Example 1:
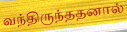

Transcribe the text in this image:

வந்திருந்ததனால்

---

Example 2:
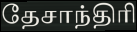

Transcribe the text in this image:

தேசாந்திரி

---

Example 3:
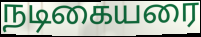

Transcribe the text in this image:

நடிகையரை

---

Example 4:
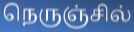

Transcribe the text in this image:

நெருஞ்சில்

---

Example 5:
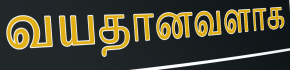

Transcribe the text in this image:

வயதானவளாக